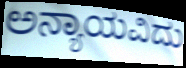
ಅನ್ಯಾಯವಿದು